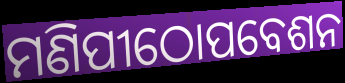
ମଣିପୀଠୋପବେଶନ